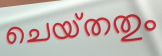
ചെയ്‌തതും